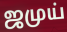
ஜமுய்